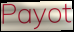
Payot